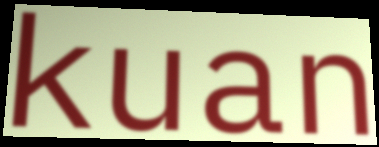
kuan